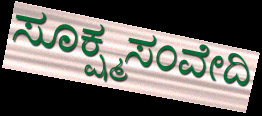
ಸೂಕ್ಷ್ಮಸಂವೇದಿ